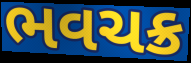
ભવચક્ર